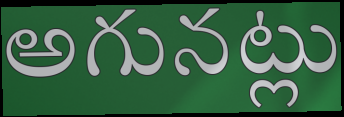
అగునట్లు